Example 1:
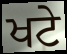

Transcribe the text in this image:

ਖਟੇ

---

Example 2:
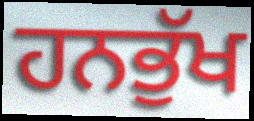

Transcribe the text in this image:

ਹਨਭੁੱਖ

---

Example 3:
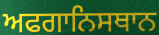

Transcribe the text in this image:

ਅਫਗਾਨਿਸਥਾਨ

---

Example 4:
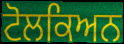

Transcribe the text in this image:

ਟੋਲਕਿਅਨ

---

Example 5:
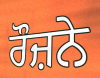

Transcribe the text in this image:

ਰੌਜ਼ਨੇ